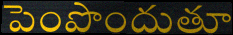
పెంపొందుతూ